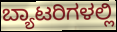
ಬ್ಯಾಟರಿಗಳಲ್ಲಿ